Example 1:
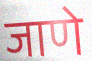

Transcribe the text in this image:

जाणे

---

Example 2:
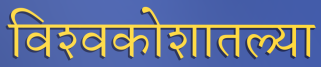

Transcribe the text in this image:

विश्वकोशातल्या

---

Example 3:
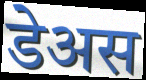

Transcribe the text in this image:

डेअस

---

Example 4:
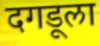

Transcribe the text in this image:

दगडूला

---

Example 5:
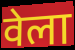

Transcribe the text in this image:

वेला